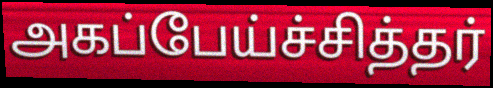
அகப்பேய்ச்சித்தர்